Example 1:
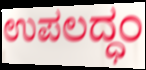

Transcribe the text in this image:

ಉಪಲದ್ಧಂ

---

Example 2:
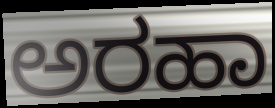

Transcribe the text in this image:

ಅರಹಾ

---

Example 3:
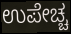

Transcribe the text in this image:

ಉಪೇಚ್ಚ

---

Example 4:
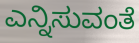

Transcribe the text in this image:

ಎನ್ನಿಸುವಂತೆ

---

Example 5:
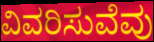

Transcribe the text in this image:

ವಿವರಿಸುವೆವು